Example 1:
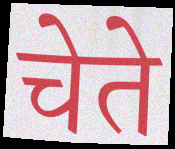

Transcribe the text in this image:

चेते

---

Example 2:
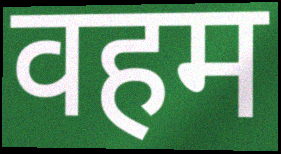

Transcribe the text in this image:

वहम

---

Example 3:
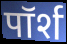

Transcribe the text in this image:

पॉर्श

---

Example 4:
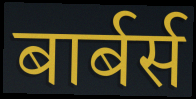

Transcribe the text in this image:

बार्बर्स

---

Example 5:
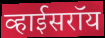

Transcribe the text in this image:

व्हाईसरॉय